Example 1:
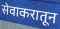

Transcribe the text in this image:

सेवाकरातून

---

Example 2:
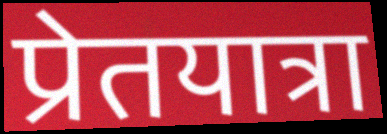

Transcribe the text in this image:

प्रेतयात्रा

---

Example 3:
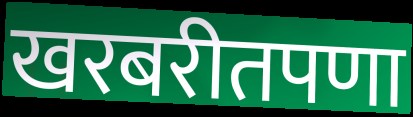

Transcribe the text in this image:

खरबरीतपणा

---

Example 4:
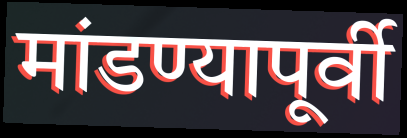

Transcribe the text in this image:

मांडण्यापूर्वी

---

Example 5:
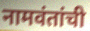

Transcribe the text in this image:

नामवंतांची